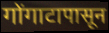
गोंगाटापासून